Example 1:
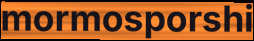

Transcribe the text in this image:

mormosporshi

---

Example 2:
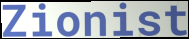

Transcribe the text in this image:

Zionist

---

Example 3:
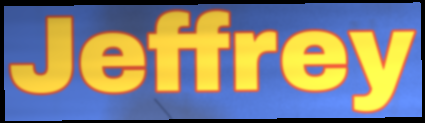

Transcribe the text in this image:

Jeffrey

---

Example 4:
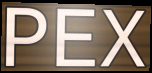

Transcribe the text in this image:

PEX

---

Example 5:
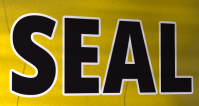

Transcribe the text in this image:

SEAL